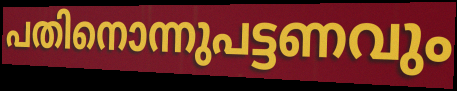
പതിനൊന്നുപട്ടണവും